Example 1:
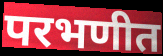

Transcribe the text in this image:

परभणीत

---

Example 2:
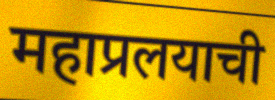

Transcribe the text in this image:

महाप्रलयाची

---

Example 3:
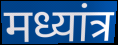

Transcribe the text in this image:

मध्यांत्र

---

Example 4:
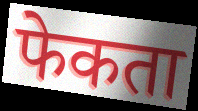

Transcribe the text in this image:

फेकता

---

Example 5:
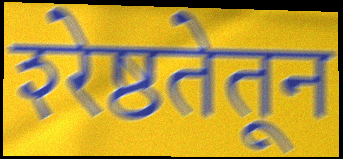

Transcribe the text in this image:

श्रेष्ठतेतून